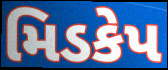
મિડકેપ